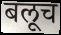
बलूच